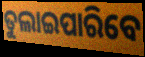
ତୁଲାଇପାରିବେ